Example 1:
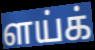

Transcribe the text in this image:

ளய்க்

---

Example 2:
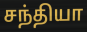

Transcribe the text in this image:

சந்தியா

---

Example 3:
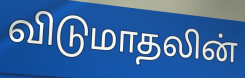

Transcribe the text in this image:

விடுமாதலின்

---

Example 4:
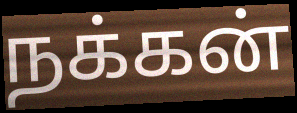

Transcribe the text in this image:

நக்கன்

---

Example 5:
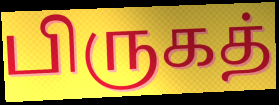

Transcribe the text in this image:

பிருகத்